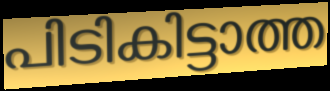
പിടികിട്ടാത്ത